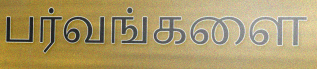
பர்வங்களை